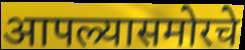
आपल्यासमोरचे